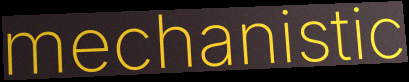
mechanistic